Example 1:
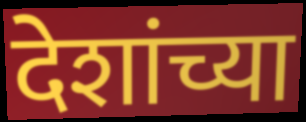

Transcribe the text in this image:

देशांच्या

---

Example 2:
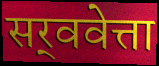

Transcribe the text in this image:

सर्ववेत्ता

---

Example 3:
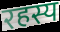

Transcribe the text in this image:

रहस्य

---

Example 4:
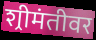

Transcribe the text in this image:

श्रीमंतीवर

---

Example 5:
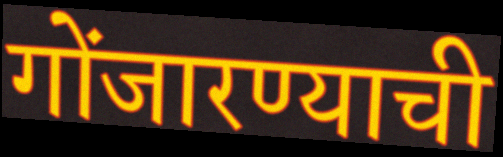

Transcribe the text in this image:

गोंजारण्याची